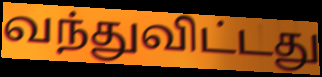
வந்துவிட்டது